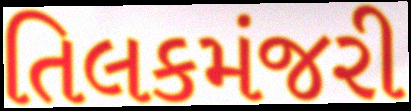
તિલકમંજરી